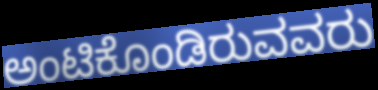
ಅಂಟಿಕೊಂಡಿರುವವರು